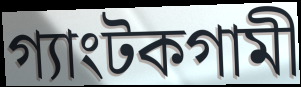
গ্যাংটকগামী